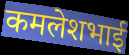
कमलेशभाई